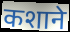
कशाने